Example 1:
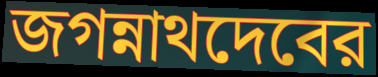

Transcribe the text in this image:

জগন্নাথদেবের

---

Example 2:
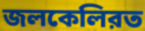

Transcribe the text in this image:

জলকেলিরত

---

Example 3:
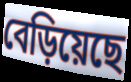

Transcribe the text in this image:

বেড়িয়েছে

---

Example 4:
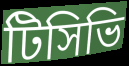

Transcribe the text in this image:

টিসিভি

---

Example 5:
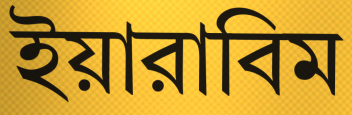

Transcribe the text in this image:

ইয়ারাবিম